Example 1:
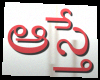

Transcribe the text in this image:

ఆస్తే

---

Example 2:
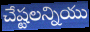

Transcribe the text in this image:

చేష్టలన్నియు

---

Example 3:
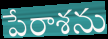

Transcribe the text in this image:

పేరాశను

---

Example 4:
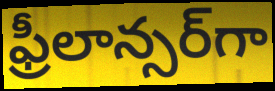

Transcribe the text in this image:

ఫ్రీలాన్సర్‌గా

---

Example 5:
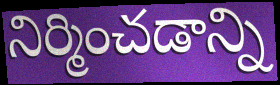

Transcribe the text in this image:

నిర్మించడాన్ని